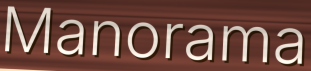
Manorama